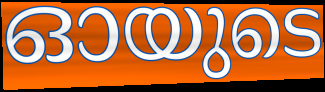
ഓയുടെ